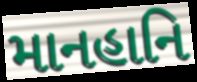
માનહાનિ